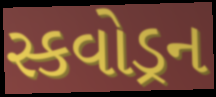
સ્કવોડ્રન